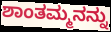
ಶಾಂತಮ್ಮನನ್ನು